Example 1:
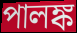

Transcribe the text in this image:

পালঙ্ক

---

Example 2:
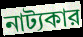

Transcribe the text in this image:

নাট্যকার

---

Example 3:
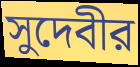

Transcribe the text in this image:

সুদেবীর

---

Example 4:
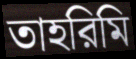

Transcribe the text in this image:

তাহরিমি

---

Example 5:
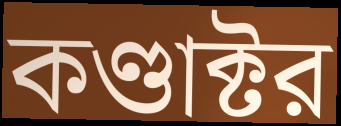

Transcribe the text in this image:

কণ্ডাক্টর